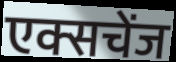
एक्सचेंज